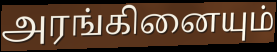
அரங்கினையும்